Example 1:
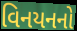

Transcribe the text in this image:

વિનયનનો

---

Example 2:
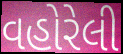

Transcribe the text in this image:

વહોરેલી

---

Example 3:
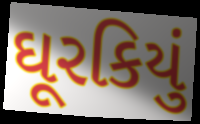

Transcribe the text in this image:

ઘૂરકિયું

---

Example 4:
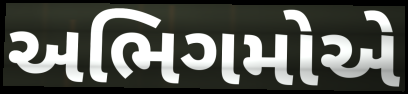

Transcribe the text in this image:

અભિગમોએ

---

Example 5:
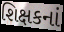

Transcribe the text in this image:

શિક્ષકનાં